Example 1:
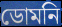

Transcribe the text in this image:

ডোমনি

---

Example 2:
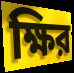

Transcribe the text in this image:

ক্ষির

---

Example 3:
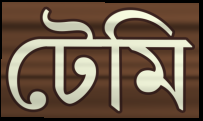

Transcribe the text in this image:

টেমি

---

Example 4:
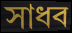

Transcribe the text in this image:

সাধব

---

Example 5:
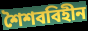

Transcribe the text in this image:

শৈশববিহীন